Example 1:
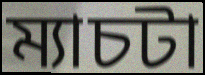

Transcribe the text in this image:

ম্যাচটা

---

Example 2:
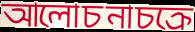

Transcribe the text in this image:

আলোচনাচক্রে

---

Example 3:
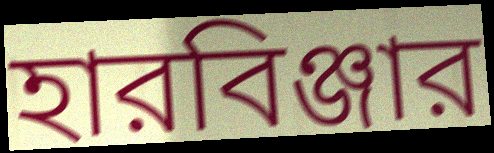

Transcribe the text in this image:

হারবিঞ্জার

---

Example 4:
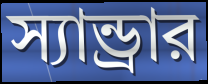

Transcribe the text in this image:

স্যান্ড্রার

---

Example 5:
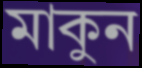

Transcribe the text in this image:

মাকুন